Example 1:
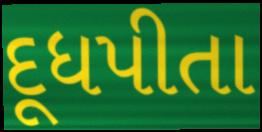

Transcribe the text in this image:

દૂધપીતા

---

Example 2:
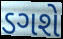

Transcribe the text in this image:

ડગશે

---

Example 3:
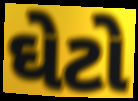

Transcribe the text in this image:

ઘેટો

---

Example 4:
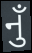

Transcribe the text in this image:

નુઁ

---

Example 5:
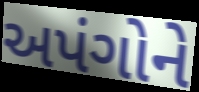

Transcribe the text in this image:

અપંગોને